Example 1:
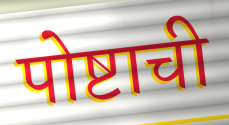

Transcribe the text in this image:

पोष्टाची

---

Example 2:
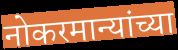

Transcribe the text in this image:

नोकरमान्यांच्या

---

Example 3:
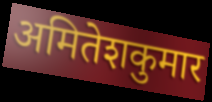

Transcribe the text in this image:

अमितेशकुमार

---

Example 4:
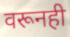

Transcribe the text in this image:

वरूनही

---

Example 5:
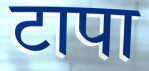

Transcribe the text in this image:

टापा